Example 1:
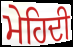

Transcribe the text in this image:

ਮੇਹਿਦੀ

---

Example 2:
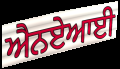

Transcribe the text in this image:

ਐਨਏਆਈ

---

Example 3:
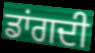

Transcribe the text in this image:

ਡਾਂਗਦੀ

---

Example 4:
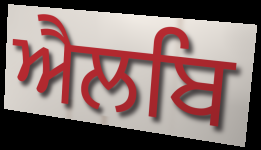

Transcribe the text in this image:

ਐਲਬਿ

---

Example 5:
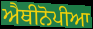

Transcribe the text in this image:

ਐਥੀਨੋਪੀਆ